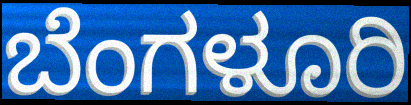
ಬೆಂಗಳೂರಿ